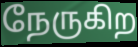
நேருகிற